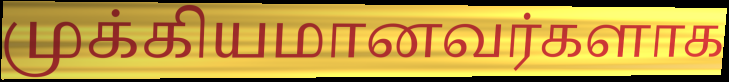
முக்கியமானவர்களாக